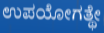
ಉಪಯೋಗತ್ಥೇ